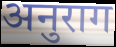
अनुराग